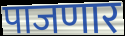
पाजणार